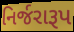
નિર્જરારૂપ